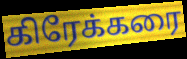
கிரேக்கரை